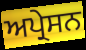
ਅਪ੍ਰੇਸਨ